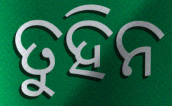
ତୁହିନ